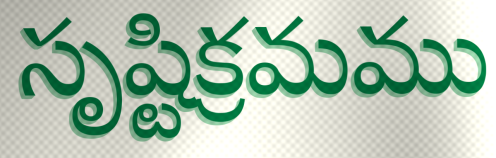
సృష్టిక్రమము